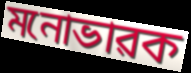
মনোভাৱক